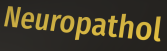
Neuropathol